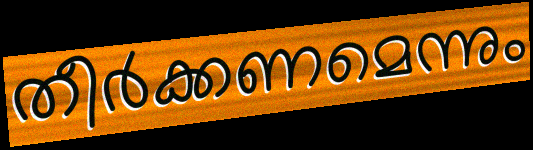
തീർക്കണമെന്നും